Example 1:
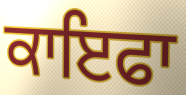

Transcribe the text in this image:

ਕਾਇਫਾ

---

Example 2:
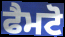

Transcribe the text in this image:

ਫੈਮਟੋ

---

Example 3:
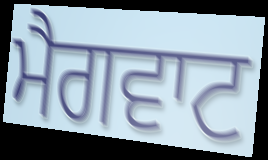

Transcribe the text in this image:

ਮੈਗਵਾਟ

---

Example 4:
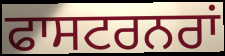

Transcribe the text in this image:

ਫਾਸਟਰਨਰਾਂ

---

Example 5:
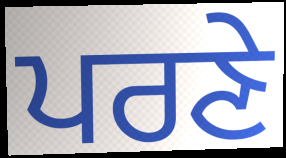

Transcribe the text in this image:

ਪਰਣੇ